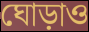
ঘোড়াও